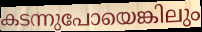
കടന്നുപോയെങ്കിലും